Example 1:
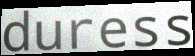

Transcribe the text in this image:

duress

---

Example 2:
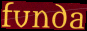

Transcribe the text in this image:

funda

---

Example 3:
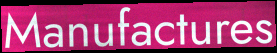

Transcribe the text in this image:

Manufactures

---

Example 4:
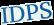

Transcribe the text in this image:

IDPS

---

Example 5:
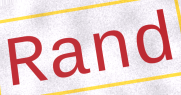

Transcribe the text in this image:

Rand